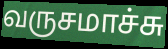
வருசமாச்சு